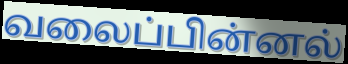
வலைப்பின்னல்